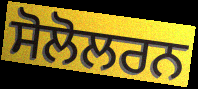
ਸੋਲੋਲਰਨ